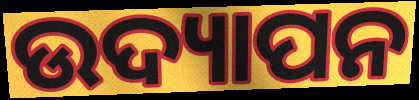
ଉଦ୍ୟାପନ